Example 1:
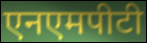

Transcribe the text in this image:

एनएमपीटी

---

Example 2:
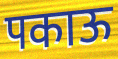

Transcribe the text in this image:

पकाऊ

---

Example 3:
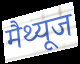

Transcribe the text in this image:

मैथ्यूज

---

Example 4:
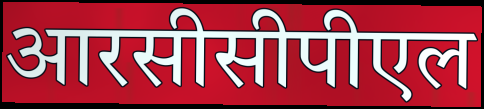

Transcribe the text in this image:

आरसीसीपीएल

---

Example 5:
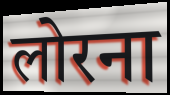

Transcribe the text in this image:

लोरना